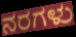
ನರಗಳು